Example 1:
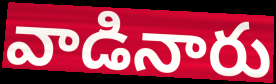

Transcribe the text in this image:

వాడినారు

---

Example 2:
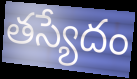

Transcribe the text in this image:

తస్యేదం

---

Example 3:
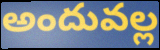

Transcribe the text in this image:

అందువల్ల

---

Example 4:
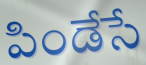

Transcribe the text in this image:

పిండేసే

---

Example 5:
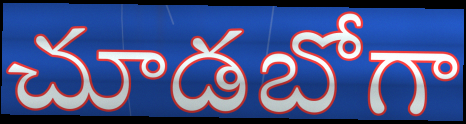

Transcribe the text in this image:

చూడబోగా